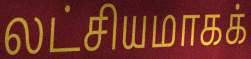
லட்சியமாகக்